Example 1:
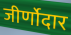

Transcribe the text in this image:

जीर्णोदार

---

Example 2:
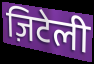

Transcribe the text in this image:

ज़िटेली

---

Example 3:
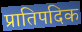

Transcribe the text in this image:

प्रातिपदिक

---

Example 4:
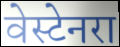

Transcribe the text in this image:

वेस्टेनरा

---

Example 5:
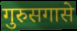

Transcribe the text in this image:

गुरुसगासे